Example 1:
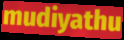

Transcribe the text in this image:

mudiyathu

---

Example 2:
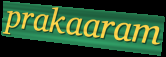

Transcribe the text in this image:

prakaaram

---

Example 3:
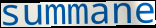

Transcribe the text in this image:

summane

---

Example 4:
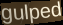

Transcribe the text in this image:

gulped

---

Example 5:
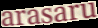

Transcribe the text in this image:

arasaru